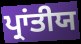
ਪ੍ਰਾਂਤੀਯ